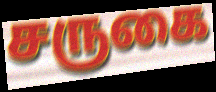
சருகை